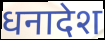
धनादेश